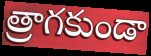
త్రాగకుండా